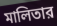
মালিতার